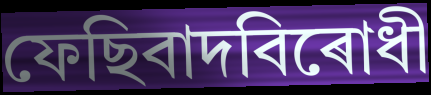
ফেছিবাদবিৰোধী